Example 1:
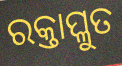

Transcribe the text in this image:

ରକ୍ତାପ୍ଳୁତ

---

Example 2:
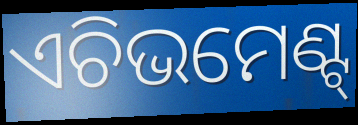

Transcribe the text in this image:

ଏଚିଭମେଣ୍ଟ୍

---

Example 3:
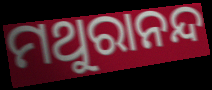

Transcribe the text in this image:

ମଥୁରାନନ୍ଦ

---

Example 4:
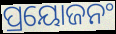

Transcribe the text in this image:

ପ୍ରୟୋଜନଂ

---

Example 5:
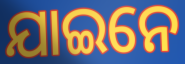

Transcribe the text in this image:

ଯାଇନେ